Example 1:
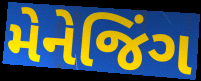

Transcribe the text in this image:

મેનેજિંગ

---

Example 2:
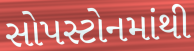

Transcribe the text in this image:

સોપસ્ટોનમાંથી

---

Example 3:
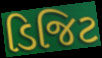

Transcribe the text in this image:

ડિજિટ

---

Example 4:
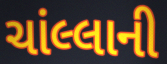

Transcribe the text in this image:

ચાંલ્લાની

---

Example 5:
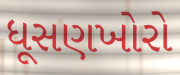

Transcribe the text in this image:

ધૂસણખોરો